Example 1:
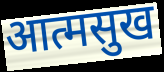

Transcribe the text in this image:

आत्मसुख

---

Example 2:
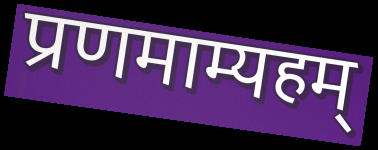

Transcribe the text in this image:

प्रणमाम्यहम्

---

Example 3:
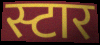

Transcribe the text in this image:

स्‍टार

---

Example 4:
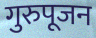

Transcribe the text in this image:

गुरुपूजन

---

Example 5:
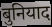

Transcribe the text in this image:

बुनियाद